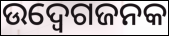
ଉଦ୍ବେଗଜନକ